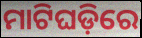
ମାଟିଘଡ଼ିରେ